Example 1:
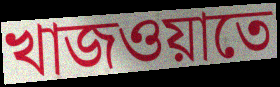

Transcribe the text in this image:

খাজওয়াতে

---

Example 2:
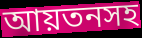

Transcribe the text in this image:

আয়তনসহ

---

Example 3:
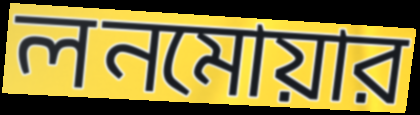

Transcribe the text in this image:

লনমোয়ার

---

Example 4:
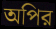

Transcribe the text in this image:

অপির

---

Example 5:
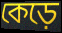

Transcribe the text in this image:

কেড়ে